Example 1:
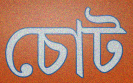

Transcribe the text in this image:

চোট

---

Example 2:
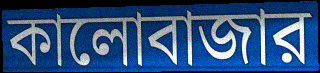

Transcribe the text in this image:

কালোবাজার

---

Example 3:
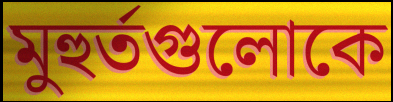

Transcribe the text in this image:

মুহুর্তগুলোকে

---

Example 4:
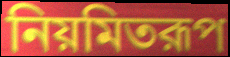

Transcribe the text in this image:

নিয়মিতরূপ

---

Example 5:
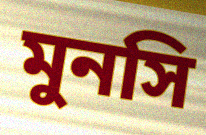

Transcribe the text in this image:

মুনসি